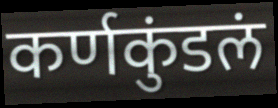
कर्णकुंडलं